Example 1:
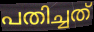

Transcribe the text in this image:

പതിച്ചത്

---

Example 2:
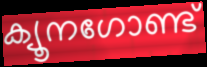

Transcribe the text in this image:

ക്യൂനഗോണ്ട്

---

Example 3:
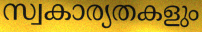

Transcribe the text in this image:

സ്വകാര്യതകളും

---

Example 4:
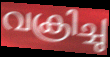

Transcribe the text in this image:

വക്രിച്ചു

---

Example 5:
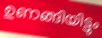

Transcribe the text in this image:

ഉണങ്ങിയിട്ടും